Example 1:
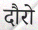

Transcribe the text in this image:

दौरो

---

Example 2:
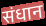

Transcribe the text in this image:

संधान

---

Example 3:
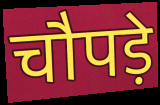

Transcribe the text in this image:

चौपड़े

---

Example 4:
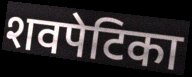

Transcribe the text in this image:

शवपेटिका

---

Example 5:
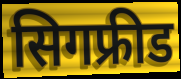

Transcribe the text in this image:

सिगफ्रीड